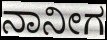
ನಾನೀಗ